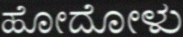
ಹೋದೋಳು